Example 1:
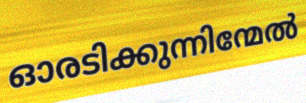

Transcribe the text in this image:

ഓരടിക്കുന്നിന്മേൽ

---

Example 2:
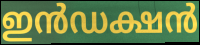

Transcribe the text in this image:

ഇൻഡക്ഷൻ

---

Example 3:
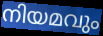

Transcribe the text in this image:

നിയമവും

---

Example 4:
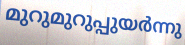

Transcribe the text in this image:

മുറുമുറുപ്പുയർന്നു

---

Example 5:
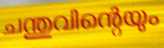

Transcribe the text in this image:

ചന്തുവിന്റെയും